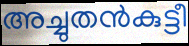
അച്ചുതൻകുട്ടീ